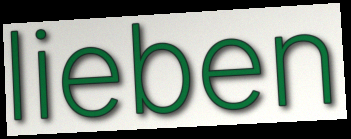
lieben